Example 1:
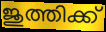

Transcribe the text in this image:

ജുത്തിക്ക്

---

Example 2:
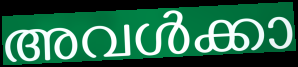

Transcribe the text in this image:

അവൾക്കാ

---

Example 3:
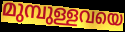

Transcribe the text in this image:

മുമ്പുള്ളവയെ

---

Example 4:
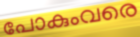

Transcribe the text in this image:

പോകുംവരെ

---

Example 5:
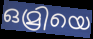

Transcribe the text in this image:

ഒമ്രിയെ